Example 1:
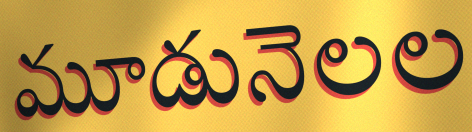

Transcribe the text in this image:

మూడునెలల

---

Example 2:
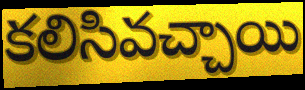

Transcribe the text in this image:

కలిసివచ్చాయి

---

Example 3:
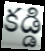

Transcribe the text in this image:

కడ్డి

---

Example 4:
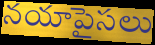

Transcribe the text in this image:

నయాపైసలు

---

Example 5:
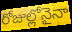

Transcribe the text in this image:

రోజుల్లోనైనా